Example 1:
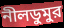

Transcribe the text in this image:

নীলডুমুর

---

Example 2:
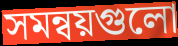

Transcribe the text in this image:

সমন্বয়গুলো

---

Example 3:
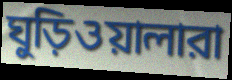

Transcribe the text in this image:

ঘুড়িওয়ালারা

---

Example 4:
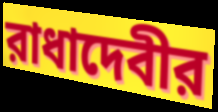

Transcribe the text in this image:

রাধাদেবীর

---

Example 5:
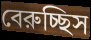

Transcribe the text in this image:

বেরুচ্ছিস